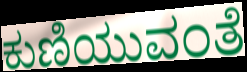
ಕುಣಿಯುವಂತೆ